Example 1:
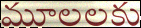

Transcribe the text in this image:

మూలలకు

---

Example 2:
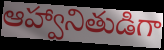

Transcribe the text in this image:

ఆహ్వానితుడిగా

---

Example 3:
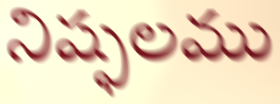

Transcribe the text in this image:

నిష్ఫలము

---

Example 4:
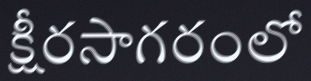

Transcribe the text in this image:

క్షీరసాగరంలో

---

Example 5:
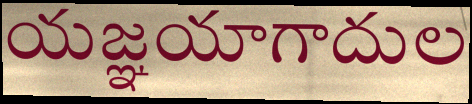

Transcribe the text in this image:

యజ్ఞయాగాదుల